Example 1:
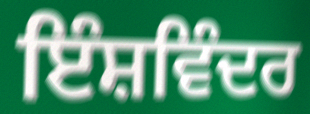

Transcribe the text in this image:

ਇੰਸ਼ਵਿੰਦਰ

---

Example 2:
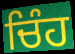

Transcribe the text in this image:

ਚਿੰਹ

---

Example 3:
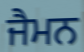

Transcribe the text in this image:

ਜੈਮਨ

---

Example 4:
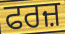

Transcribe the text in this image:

ਫਰਜ਼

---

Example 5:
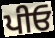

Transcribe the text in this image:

ਪੀਓ